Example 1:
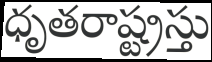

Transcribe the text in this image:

ధృతరాష్ట్రస్తు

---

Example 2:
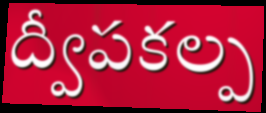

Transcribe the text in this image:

ద్వీపకల్ప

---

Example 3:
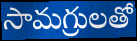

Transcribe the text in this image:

సామగ్రులతో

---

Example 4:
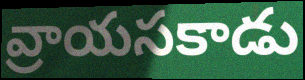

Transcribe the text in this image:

వ్రాయసకాడు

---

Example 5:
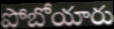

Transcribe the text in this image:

పోబోయారు